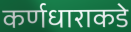
कर्णधाराकडे